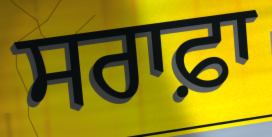
ਸਰਾਫ਼ਾ